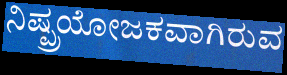
ನಿಷ್ಪ್ರಯೋಜಕವಾಗಿರುವ